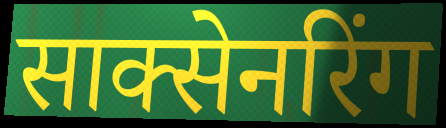
साक्सेनरिंग